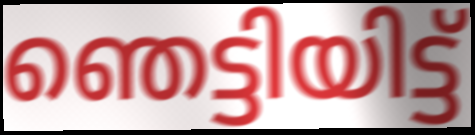
ഞെട്ടിയിട്ട്